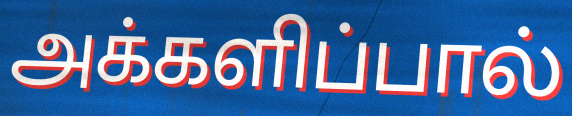
அக்களிப்பால்